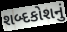
શબ્દકોશનું